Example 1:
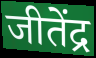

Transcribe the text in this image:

जीतेंद्र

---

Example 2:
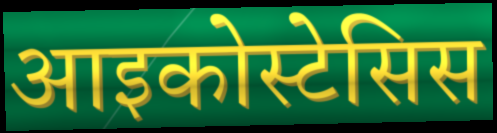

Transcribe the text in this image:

आइकोस्टेसिस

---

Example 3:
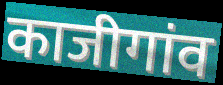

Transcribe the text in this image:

काजीगांव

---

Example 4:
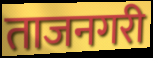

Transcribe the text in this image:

ताजनगरी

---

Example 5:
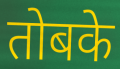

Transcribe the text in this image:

तोबके